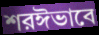
শরঈভাবে